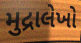
મુદ્રાલેખો